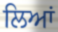
ਲਿਆਂ